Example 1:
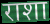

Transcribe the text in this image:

राशा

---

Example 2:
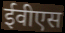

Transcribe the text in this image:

ईवीएस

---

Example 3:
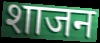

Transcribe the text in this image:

शाजन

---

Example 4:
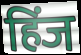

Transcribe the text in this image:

हिंज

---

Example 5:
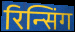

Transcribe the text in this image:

रिन्सिंग